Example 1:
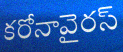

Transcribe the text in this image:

కరోనావైరస్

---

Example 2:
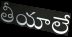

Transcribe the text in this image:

తీయాలే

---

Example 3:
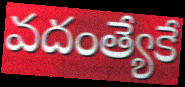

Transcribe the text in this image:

వదంత్యేకే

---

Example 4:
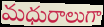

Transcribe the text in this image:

మధురాలుగా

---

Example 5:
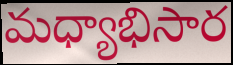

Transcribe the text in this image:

మధ్యాభిసార